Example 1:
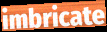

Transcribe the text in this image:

imbricate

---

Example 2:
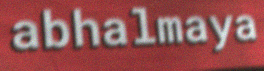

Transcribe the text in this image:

abhalmaya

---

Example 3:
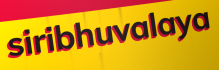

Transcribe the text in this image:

siribhuvalaya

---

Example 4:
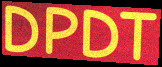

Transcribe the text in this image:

DPDT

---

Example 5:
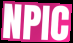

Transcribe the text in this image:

NPIC